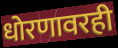
धोरणावरही